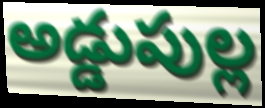
అడ్డుపుల్ల